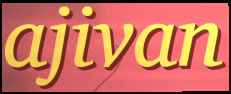
ajivan